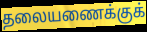
தலையணைக்குக்